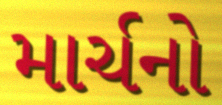
માર્ચનો